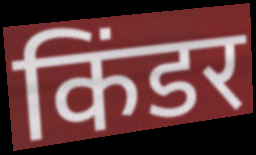
किंडर